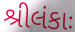
શ્રીલંકાઃ